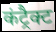
कंट्रैक्ट